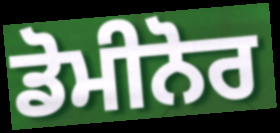
ਡੋਮੀਨੋਰ